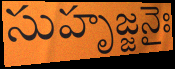
సుహృజ్జనైః